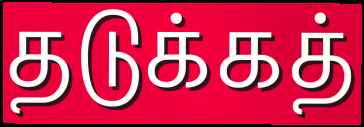
தடுக்கத்